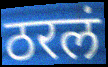
ठरलं